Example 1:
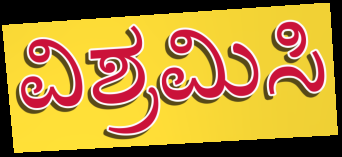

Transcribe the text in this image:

ವಿಶ್ರಮಿಸಿ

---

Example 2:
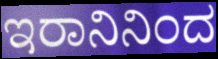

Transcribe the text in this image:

ಇರಾನಿನಿಂದ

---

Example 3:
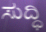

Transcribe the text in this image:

ಸುದ್ಧಿ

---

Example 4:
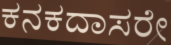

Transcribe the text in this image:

ಕನಕದಾಸರೇ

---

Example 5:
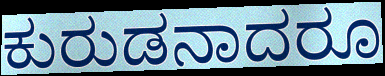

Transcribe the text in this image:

ಕುರುಡನಾದರೂ